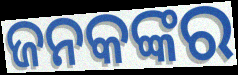
ଜନକଙ୍କର